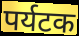
पर्यटक